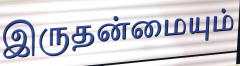
இருதன்மையும்